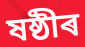
ষষ্ঠীৰ